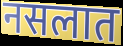
नसलात